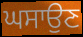
ਘਸਾਉਣ